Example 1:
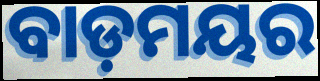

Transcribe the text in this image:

ବାଡ଼ମୟର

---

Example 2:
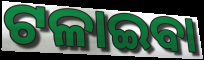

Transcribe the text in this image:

ଟଳାଇବା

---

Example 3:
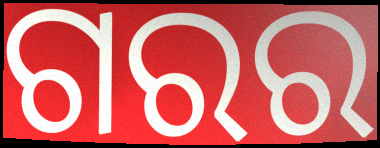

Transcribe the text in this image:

ଗରର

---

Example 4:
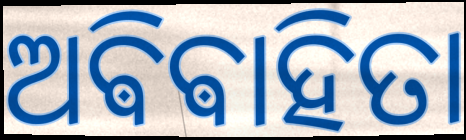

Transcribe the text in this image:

ଅଵିଵାହିତା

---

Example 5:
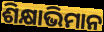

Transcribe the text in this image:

ଶିକ୍ଷାଭିମାନ